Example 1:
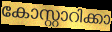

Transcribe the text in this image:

കോസ്റ്റാറിക്കാ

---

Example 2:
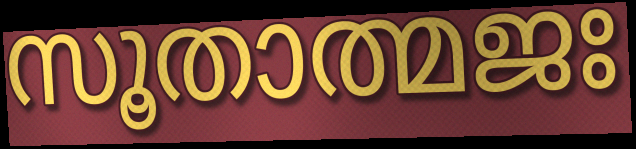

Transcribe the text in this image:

സൂതാത്മജഃ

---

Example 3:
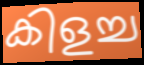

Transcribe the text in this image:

കിളച്ച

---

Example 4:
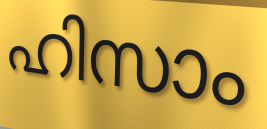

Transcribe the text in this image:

ഹിസാം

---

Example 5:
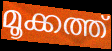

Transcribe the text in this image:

മൂക്കത്ത്